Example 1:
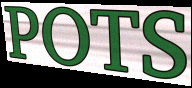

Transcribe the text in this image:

POTS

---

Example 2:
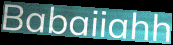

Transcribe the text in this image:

Babaiiahh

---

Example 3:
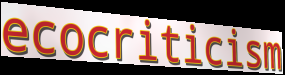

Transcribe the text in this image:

ecocriticism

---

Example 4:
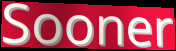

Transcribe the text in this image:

Sooner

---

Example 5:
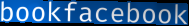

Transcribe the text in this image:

bookfacebook